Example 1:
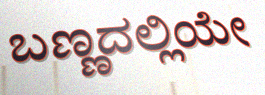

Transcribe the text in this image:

ಬಣ್ಣದಲ್ಲಿಯೇ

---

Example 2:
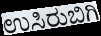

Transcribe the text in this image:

ಉಸಿರುಬಿಗಿ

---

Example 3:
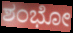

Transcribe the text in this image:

ಶಂಭೋ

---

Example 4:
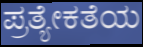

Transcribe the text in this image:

ಪ್ರತ್ಯೇಕತೆಯ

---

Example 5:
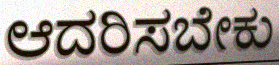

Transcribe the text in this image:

ಆದರಿಸಬೇಕು